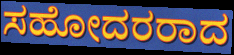
ಸಹೋದರರಾದ